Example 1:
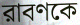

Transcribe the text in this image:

রাবণকে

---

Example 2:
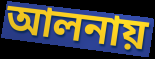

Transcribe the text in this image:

আলনায়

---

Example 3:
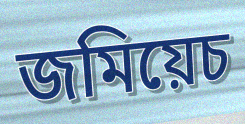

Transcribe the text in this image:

জমিয়েচ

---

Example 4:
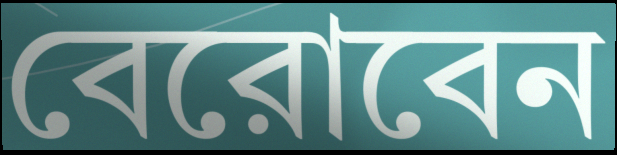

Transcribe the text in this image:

বেরোবেন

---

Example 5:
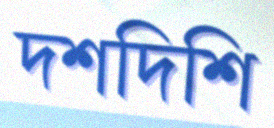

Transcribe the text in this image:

দশদিশি